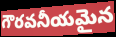
గౌరవనీయమైన